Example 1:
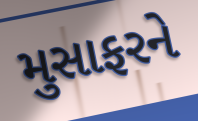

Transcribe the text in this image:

મુસાફરને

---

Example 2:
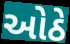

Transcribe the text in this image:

ઓઠે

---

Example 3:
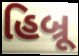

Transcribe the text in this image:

હિબ્રૂ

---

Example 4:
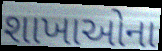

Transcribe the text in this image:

શાખાઓના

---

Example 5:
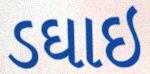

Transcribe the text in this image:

ડઘાઇ